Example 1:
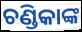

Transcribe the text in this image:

ଚଣ୍ଡିକାଙ୍କ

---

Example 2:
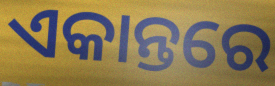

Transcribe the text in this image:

ଏକାନ୍ତରେ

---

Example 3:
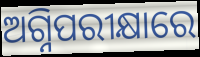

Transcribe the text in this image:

ଅଗ୍ନିପରୀକ୍ଷାରେ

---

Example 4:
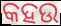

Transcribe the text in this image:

କହଉ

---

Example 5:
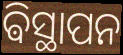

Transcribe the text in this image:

ଵିସ୍ଥାପନ